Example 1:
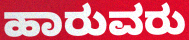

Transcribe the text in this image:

ಹಾರುವರು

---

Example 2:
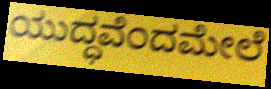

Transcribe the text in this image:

ಯುದ್ಧವೆಂದಮೇಲೆ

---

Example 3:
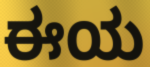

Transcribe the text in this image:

ಈಯ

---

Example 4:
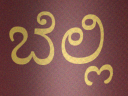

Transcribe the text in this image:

ಬೆಲ್ಲಿ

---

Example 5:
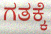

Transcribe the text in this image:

ಗತಕ್ಕೆ